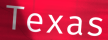
Texas